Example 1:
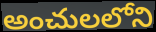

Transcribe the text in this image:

అంచులలోని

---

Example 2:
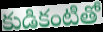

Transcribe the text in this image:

కుడికంటితో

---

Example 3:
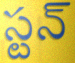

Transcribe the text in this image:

స్టన్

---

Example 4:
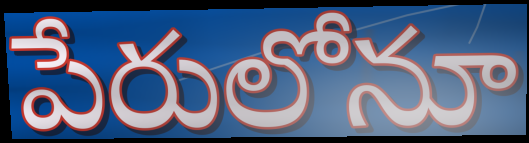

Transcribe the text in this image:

పేరులోనూ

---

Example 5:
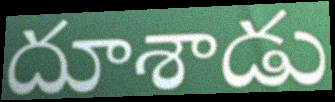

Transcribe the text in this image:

దూశాడు